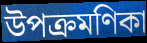
উপক্রমণিকা